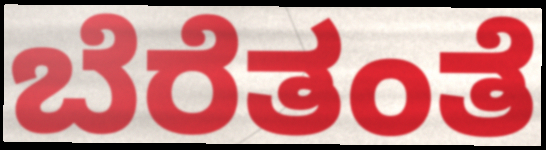
ಬೆರೆತಂತೆ